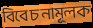
বিবেচনামূলক